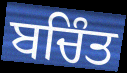
ਬਚਿੰਤ